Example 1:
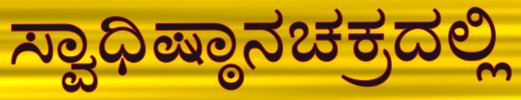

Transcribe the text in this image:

ಸ್ವಾಧಿಷ್ಠಾನಚಕ್ರದಲ್ಲಿ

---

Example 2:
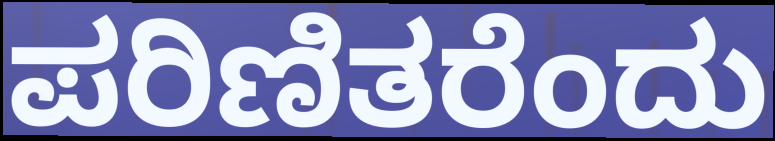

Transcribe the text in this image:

ಪರಿಣಿತರೆಂದು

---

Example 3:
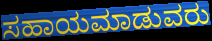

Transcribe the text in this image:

ಸಹಾಯಮಾಡುವರು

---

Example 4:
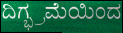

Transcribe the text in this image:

ದಿಗ್ಭ್ರಮೆಯಿಂದ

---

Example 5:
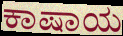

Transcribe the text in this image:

ಕಾಷಾಯ